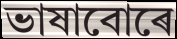
ভাষাবোৰে